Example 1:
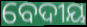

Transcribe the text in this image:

ବେଦୀୟ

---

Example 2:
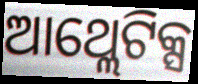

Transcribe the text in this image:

ଆଥ୍ଲେଟିକ୍ସ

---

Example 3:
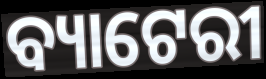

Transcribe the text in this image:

ବ୍ୟାଟେରୀ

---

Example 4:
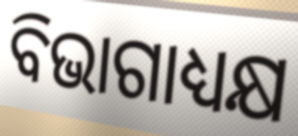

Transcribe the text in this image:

ବିଭାଗାଧ୍ୟକ୍ଷ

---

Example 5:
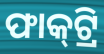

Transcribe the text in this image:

ଫାକ୍‍ଟ୍ରି